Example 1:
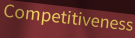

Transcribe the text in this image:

Competitiveness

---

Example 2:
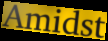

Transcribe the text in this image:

Amidst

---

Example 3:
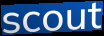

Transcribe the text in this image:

scout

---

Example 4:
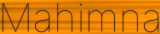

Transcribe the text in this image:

Mahimna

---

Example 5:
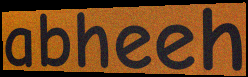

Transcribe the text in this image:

abheeh